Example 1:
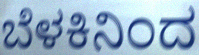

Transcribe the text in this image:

ಬೆಳಕಿನಿಂದ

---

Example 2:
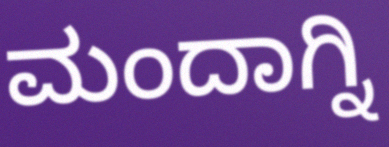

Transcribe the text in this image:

ಮಂದಾಗ್ನಿ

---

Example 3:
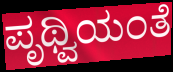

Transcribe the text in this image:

ಪೃಥ್ವಿಯಂತೆ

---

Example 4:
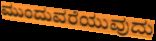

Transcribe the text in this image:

ಮುಂದುವರೆಯುವುದು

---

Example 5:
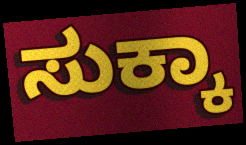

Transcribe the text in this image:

ಸುಕ್ಕಾ